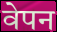
वेपन